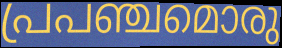
പ്രപഞ്ചമൊരു